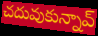
చదువుకున్నావ్